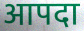
आपदा